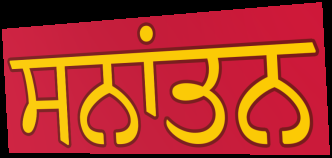
ਸਨਾਂਤਨ